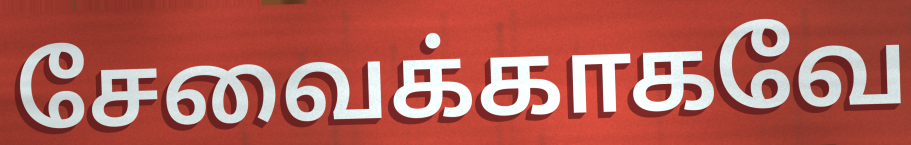
சேவைக்காகவே